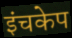
इंचकेप